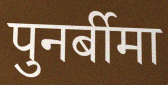
पुनर्बीमा